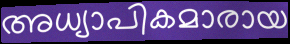
അധ്യാപികമാരായ